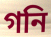
গনি